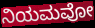
ನಿಯಮವೋ